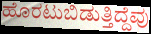
ಹೊರಟುಬಿಡುತ್ತಿದ್ದೆವು